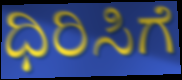
ಧಿರಿಸಿಗೆ